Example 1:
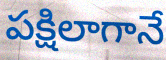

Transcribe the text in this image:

పక్షిలాగానే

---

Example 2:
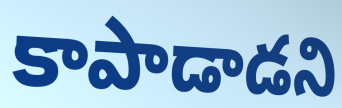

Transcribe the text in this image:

కాపాడాడని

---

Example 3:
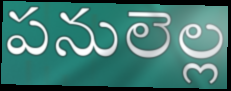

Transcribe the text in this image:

పనులెల్ల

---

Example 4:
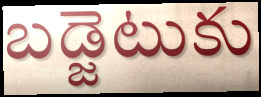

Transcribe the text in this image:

బడ్జెటుకు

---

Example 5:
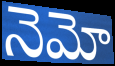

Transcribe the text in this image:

నెమో